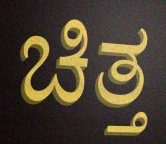
ಚಿತ್ತ